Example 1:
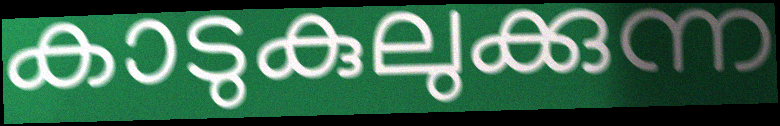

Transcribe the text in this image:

കാടുകുലുക്കുന്ന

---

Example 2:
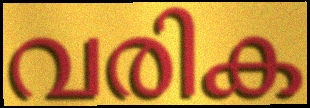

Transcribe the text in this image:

വരിക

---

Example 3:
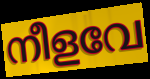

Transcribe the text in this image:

നീളവേ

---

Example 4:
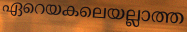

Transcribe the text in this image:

ഏറെയകലെയല്ലാത്ത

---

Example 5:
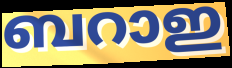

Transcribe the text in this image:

ബറാഇ